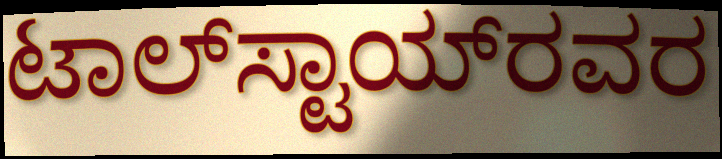
ಟಾಲ್‌ಸ್ಟಾಯ್‌ರವರ